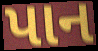
પાન